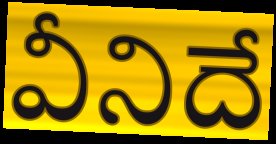
వీనిదే